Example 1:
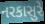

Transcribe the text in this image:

નરકાસુરે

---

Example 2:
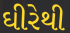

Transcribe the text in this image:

ઘીરેથી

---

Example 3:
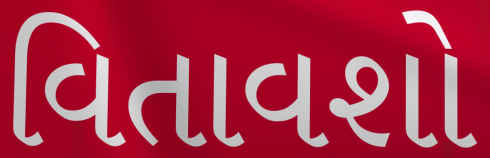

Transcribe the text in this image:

વિતાવશો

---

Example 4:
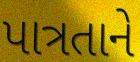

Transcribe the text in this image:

પાત્રતાને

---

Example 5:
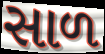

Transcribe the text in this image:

સાળ